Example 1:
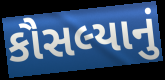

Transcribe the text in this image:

કૌસલ્યાનું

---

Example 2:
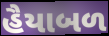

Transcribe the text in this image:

હૈયાબળ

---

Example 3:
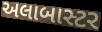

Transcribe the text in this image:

અલાબાસ્ટર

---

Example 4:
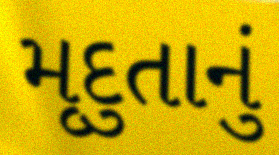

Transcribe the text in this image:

મૃદુતાનું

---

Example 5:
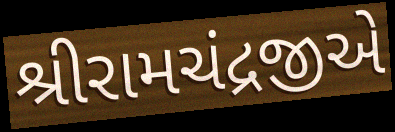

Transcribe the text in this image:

શ્રીરામચંદ્રજીએ